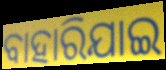
ବାହାରିଯାଇ